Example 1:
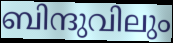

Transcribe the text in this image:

ബിന്ദുവിലും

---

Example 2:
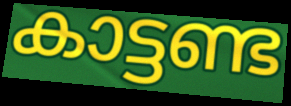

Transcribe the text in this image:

കാട്ടണ്ട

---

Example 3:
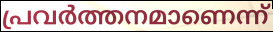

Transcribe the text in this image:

പ്രവർത്തനമാണെന്ന്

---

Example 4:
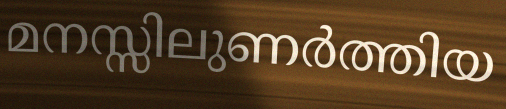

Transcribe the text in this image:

മനസ്സിലുണർത്തിയ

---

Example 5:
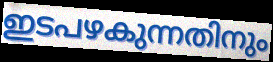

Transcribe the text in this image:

ഇടപഴകുന്നതിനും